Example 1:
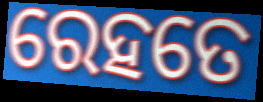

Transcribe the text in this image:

ରେହତେ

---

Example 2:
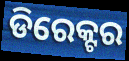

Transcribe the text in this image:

ଡିରେକ୍ଟର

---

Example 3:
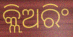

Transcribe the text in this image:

କ୍ଲିଅରିଂ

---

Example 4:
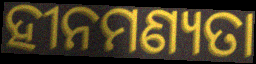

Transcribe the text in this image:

ହୀନମଣ୍ୟତା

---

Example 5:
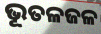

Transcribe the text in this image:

ଭୂତଳଜଳ